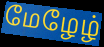
மேழேழ்